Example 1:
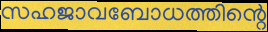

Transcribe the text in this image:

സഹജാവബോധത്തിന്റെ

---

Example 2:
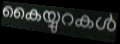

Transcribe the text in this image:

കൈയ്യുറകൾ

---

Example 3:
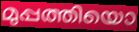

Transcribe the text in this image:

മുപ്പത്തിയൊ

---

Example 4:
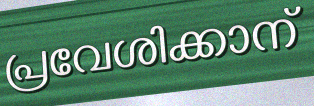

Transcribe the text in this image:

പ്രവേശിക്കാന്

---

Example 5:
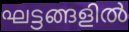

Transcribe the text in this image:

ഘട്ടങ്ങളിൽ